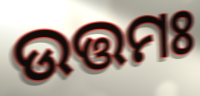
ଉତ୍ତମଃ